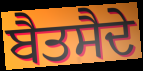
ਬੈਤਸੈਦੇ